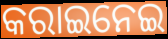
କରାଇନେଇ